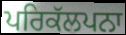
ਪਰਿਕੱਲਪਨਾ